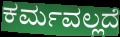
ಕರ್ಮವಲ್ಲದೆ